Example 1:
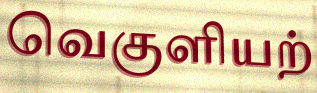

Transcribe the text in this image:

வெகுளியற்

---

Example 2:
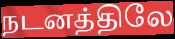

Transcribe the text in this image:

நடனத்திலே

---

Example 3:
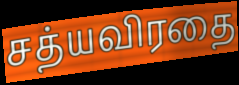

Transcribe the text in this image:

சத்யவிரதை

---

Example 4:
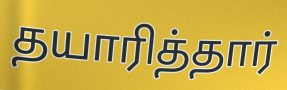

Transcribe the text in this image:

தயாரித்தார்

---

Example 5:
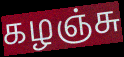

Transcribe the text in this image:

கழஞ்சு